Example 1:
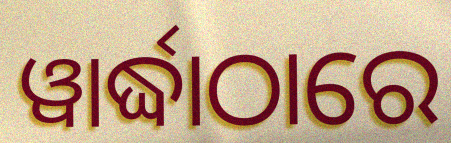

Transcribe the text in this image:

ୱାର୍ଦ୍ଧାଠାରେ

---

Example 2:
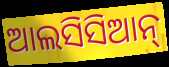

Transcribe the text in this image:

ଆଲସିସିଆନ୍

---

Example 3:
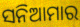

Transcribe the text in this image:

ସନିଆମାର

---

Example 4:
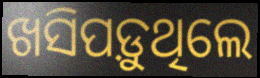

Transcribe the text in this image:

ଖସିପଡ଼ୁଥିଲେ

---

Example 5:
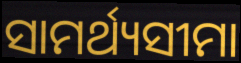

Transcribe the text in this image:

ସାମର୍ଥ୍ୟସୀମା